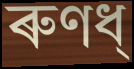
ৰুণধ্